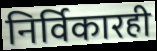
निर्विकारही